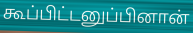
கூப்பிட்டனுப்பினான்